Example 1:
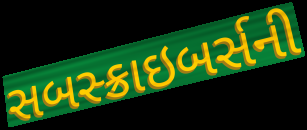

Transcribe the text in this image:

સબસ્ક્રાઇબર્સની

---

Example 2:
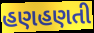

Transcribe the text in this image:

હણહણતી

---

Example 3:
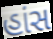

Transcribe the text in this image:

હાંસ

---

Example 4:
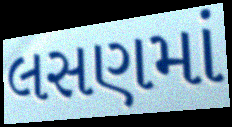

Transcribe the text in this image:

લસણમાં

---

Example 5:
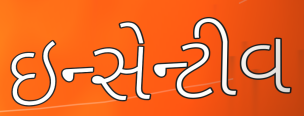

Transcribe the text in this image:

ઇન્સેન્ટીવ